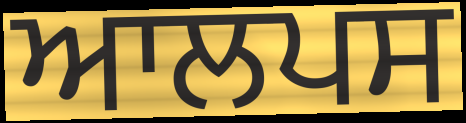
ਆਲਪਸ